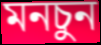
মনচুন